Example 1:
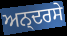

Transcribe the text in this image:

ਅਨ੍ਦਰਸੇ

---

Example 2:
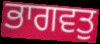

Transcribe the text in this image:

ਭਾਗਵਤੁ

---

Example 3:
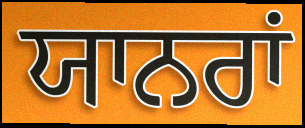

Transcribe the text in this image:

ਯਾਨਰਾਂ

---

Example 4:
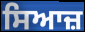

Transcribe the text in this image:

ਸਿਆਜ਼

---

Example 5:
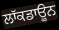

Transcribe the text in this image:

ਲਾੱਕਡਾਊਨ